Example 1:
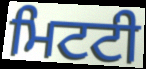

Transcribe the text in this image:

ਮਿਟਟੀ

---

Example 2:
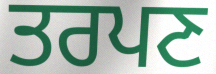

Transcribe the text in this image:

ਤਰਪਣ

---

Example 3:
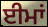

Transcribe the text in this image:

ਈਮਾਂ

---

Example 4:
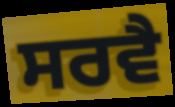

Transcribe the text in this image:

ਸਰਵੈ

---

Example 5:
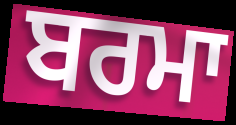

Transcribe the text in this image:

ਬਰਮਾ